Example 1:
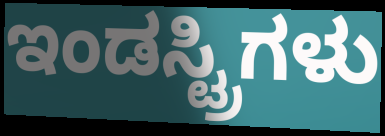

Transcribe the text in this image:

ಇಂಡಸ್ಟ್ರಿಗಳು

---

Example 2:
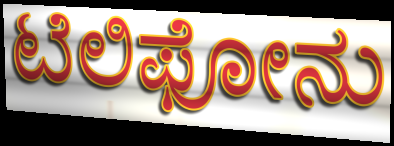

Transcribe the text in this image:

ಟೆಲಿಫೋನು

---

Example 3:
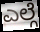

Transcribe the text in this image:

ಎಲ್ಗೆ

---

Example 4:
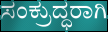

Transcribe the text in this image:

ಸಂಕ್ರುದ್ಧರಾಗಿ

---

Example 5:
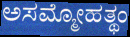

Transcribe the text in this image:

ಅಸಮ್ಮೋಹತ್ಥಂ